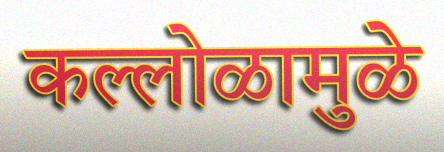
कल्लोळामुळे